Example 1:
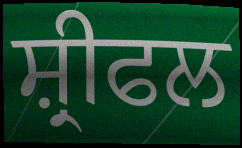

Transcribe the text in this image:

ਸ਼੍ਰੀਫਲ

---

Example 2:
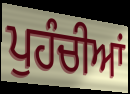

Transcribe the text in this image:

ਪੁਹੰਚੀਆਂ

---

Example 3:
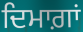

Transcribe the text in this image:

ਦਿਮਾਗ਼ਾਂ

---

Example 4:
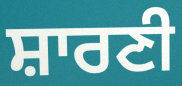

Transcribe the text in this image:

ਸ਼ਾਰਣੀ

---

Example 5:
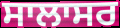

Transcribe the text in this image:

ਸਾਲਾਸਰ